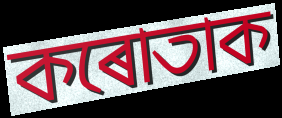
কৰোতাক